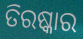
ତିରଷ୍କାର